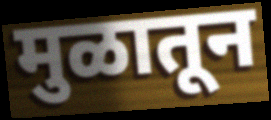
मुळातून